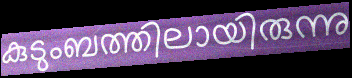
കുടുംബത്തിലായിരുന്നു